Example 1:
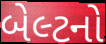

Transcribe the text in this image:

બેલ્ટનો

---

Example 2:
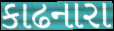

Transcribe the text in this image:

કાઢનારા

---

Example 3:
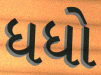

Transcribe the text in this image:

ધધો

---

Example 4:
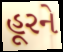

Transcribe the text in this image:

હૂરને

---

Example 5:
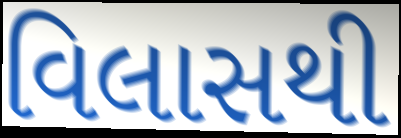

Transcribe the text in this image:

વિલાસથી